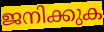
ജനിക്കുക